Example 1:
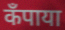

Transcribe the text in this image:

कँपाया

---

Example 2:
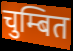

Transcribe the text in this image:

चुम्बित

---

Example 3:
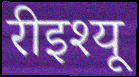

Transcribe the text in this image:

रीइश्यू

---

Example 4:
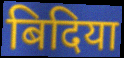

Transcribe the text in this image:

बिदिया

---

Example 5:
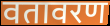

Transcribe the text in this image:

वतावरण